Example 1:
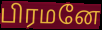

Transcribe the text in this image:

பிரமனே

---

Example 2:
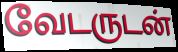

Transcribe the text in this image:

வேடருடன்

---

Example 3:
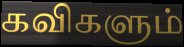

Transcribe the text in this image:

கவிகளும்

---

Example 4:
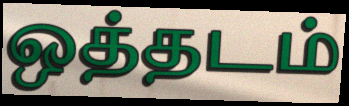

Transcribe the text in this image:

ஒத்தடம்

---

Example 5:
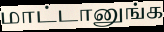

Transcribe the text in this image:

மாட்டானுங்க